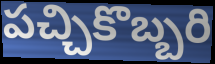
పచ్చికొబ్బరి